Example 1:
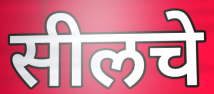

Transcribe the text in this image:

सीलचे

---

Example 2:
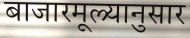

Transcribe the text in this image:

बाजारमूल्यानुसार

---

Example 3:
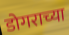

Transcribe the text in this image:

डोगराच्या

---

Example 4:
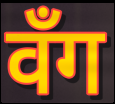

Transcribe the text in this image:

वँग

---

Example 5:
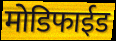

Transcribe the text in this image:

मोडिफाईड